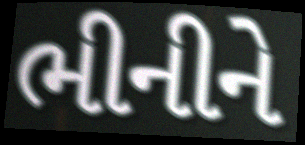
ભીનીને